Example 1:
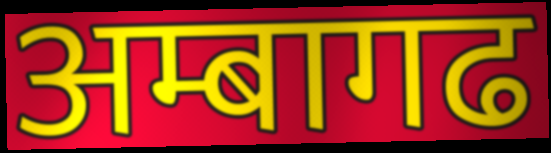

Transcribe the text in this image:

अम्बागढ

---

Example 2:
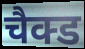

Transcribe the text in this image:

चैक्ड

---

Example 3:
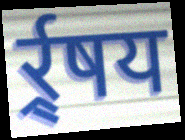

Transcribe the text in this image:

र्र्र्षय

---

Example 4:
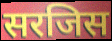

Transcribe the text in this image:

सरजिस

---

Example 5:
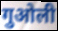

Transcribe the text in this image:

गुओली